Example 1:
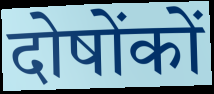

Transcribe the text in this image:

दोषोंकों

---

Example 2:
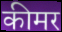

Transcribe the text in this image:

कीमर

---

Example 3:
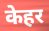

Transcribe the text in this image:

केहर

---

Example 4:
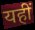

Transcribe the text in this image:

यहीं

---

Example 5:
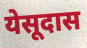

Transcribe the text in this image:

येसूदास